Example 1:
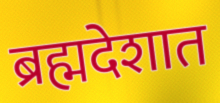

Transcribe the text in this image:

ब्रह्मदेशात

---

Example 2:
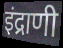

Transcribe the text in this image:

इंद्राणी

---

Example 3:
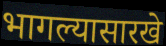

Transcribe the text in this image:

भागल्यासारखे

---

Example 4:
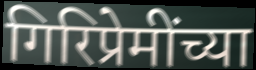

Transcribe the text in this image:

गिरिप्रेमींच्या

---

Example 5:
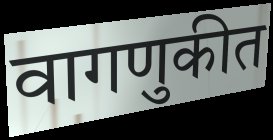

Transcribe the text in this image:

वागणुकीत